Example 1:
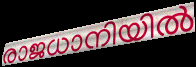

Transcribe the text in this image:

രാജധാനിയിൽ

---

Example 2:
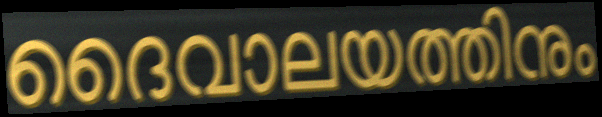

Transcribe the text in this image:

ദൈവാലയത്തിനും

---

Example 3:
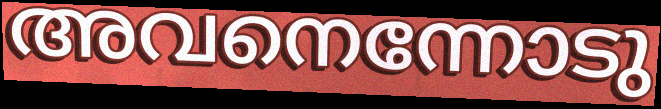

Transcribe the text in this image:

അവനെന്നോടു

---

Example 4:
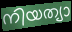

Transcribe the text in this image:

നിയത്യാ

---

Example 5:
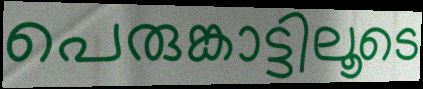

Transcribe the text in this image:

പെരുങ്കാട്ടിലൂടെ